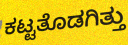
ಕಟ್ಟತೊಡಗಿತ್ತು